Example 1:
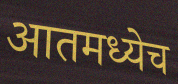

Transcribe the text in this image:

आतमध्येच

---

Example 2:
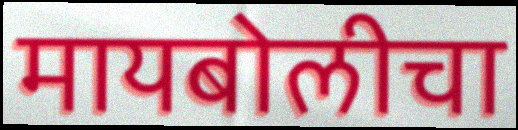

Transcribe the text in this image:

मायबोलीचा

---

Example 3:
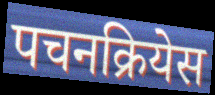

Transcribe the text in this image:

पचनक्रियेस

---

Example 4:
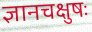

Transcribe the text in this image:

ज्ञानचक्षुषः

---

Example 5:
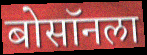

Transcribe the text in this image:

बोसॉनला